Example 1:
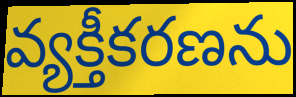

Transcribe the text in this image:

వ్యక్తీకరణను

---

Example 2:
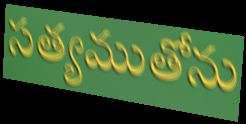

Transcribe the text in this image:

సత్యముతోను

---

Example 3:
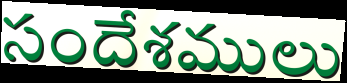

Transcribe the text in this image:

సందేశములు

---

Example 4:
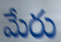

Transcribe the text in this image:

మేరు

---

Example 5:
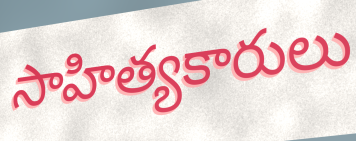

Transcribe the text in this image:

సాహిత్యకారులు